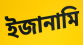
ইজানামি